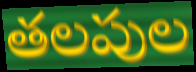
తలపుల